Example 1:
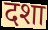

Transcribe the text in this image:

दशा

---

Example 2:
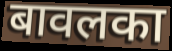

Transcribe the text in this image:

बावलका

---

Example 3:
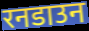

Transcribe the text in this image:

रनडाउन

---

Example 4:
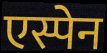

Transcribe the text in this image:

एस्पेन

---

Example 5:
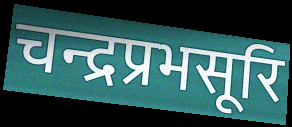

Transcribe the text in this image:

चन्द्रप्रभसूरि